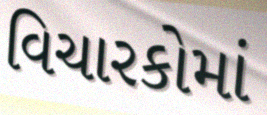
વિચારકોમાં